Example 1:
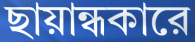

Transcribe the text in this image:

ছায়ান্ধকারে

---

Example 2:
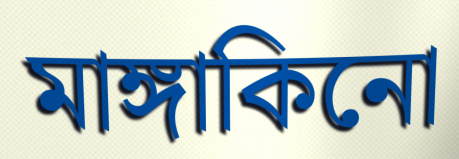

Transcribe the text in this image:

মাঙ্গাকিনো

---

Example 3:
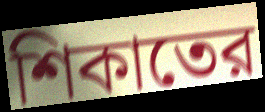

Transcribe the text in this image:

শিকাতের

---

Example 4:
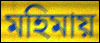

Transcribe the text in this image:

মহিমায়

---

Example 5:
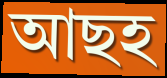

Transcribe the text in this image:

আছহ